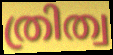
ത്രിത്വ